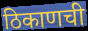
ठिकाणची